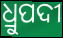
ଧ୍ରୁପଦୀ